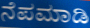
ನೆಪಮಾಡಿ